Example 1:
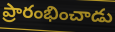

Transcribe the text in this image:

ప్రారంభించాడు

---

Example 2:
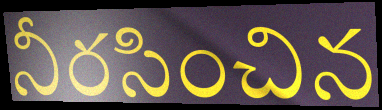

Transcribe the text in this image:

నీరసించిన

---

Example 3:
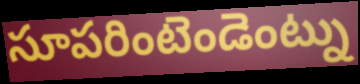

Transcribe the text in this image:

సూపరింటెండెంట్ను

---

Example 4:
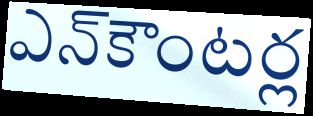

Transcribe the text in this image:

ఎన్‌కౌంటర్ల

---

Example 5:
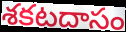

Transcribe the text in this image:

శకటదాసం